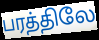
பரத்திலே